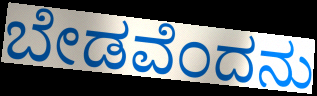
ಬೇಡವೆಂದನು